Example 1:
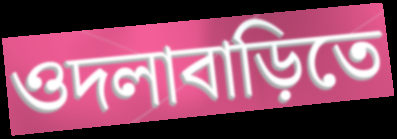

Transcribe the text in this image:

ওদলাবাড়িতে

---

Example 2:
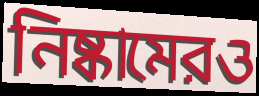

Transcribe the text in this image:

নিষ্কামেরও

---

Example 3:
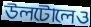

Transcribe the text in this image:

উলটোলেও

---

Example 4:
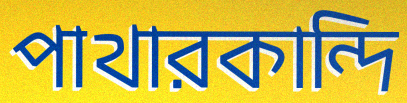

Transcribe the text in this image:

পাথারকান্দি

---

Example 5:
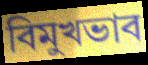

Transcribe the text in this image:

বিমুখভাব